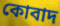
কোবাদ